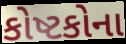
કોષ્ટકોના